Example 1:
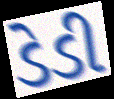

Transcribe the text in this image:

ડેડી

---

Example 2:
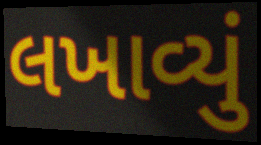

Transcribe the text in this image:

લખાવ્યું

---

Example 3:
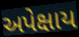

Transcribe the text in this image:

અપેક્ષાય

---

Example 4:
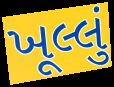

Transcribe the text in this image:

ખૂલ્લું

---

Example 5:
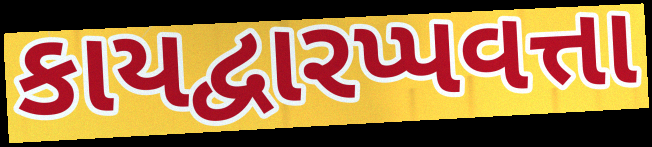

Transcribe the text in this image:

કાયદ્વારપ્પવત્તા